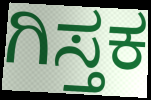
ಗಿಸ್ತಕ